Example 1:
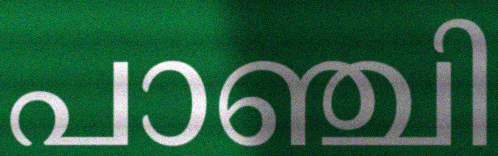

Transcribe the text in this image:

പാഞ്ചി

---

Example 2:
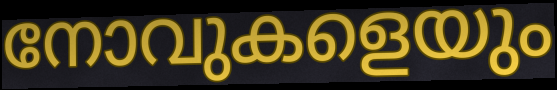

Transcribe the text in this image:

നോവുകളെയും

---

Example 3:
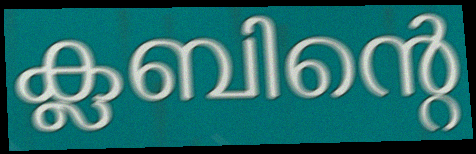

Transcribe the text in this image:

ക്ലബിന്റെ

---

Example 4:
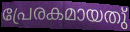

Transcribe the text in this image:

പ്രേരകമായതു്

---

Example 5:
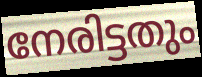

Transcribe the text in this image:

നേരിട്ടതും